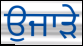
ਉਜਾੜੇ